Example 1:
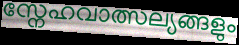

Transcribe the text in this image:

സ്നേഹവാത്സല്യങ്ങളും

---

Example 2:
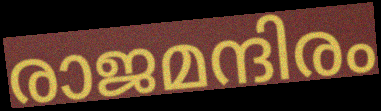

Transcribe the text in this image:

രാജമന്ദിരം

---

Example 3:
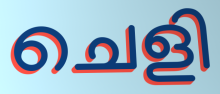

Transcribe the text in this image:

ചെളി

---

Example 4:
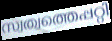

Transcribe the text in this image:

സ്വത്വത്തെപ്പറ്റി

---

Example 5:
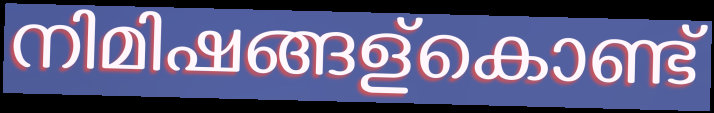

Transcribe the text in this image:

നിമിഷങ്ങള്കൊണ്ട്